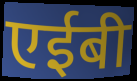
एईबी